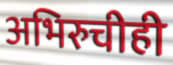
अभिरुचीही